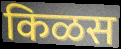
किळस